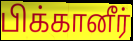
பிக்கானீர்